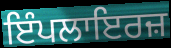
ਇੰਪਲਾਇਰਜ਼